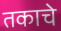
तकाचे